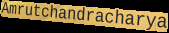
Amrutchandracharya